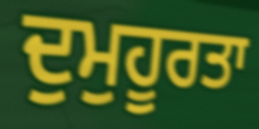
ਦੁਮੁਹੂਰਤਾ